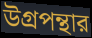
উগ্রপন্থার